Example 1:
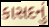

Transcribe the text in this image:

કાસદનું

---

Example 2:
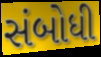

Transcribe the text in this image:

સંબોધી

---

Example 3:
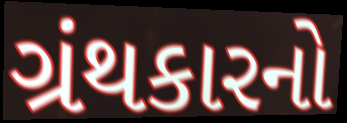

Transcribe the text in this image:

ગ્રંથકારનો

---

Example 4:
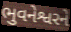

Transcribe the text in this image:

ભુવનેશ્વરને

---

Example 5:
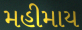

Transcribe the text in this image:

મહીમાય